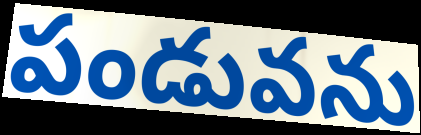
పండువను